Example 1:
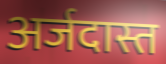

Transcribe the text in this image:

अर्जदास्त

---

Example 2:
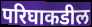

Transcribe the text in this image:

परिघाकडील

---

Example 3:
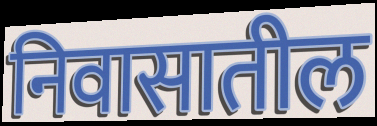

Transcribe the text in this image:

निवासातील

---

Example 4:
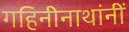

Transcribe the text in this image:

गहिनीनाथांनीं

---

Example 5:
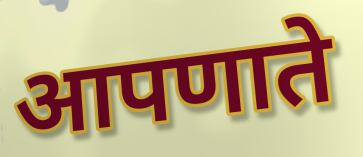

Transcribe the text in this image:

आपणाते